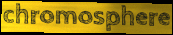
chromosphere